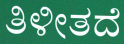
ತಿಳೀತದೆ